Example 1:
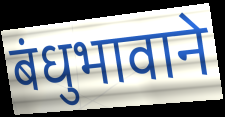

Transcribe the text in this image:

बंधुभावाने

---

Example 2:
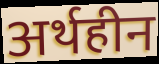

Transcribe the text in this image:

अर्थहीन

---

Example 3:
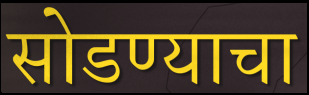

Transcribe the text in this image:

सोडण्याचा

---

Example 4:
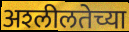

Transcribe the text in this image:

अश्‍लीलतेच्या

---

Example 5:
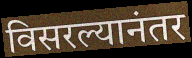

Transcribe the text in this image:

विसरल्यानंतर